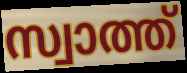
സ്വാത്ത്